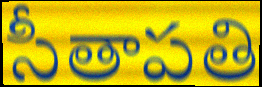
సీతాపతి